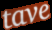
tave